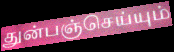
துன்பஞ்செய்யும்